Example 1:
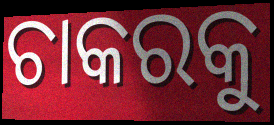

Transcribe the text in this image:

ଚାକରକୁ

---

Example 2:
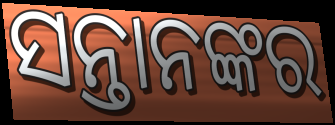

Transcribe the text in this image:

ସନ୍ତାନଙ୍କର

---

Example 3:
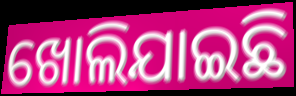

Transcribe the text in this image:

ଖୋଲିଯାଇଛି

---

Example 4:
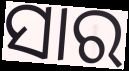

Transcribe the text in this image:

ସାର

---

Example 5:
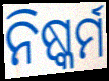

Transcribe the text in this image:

ନିଷ୍କର୍ମ